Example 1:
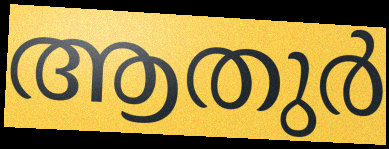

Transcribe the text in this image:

ആതുർ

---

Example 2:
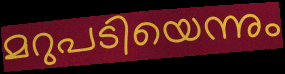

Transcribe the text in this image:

മറുപടിയെന്നും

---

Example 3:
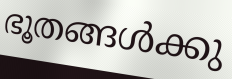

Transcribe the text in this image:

ഭൂതങ്ങൾക്കു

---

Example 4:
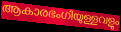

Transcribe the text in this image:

ആകാരഭംഗിയുള്ളവളും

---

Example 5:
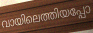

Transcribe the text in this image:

വായിലെത്തിയപ്പോ